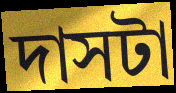
দাসটা